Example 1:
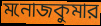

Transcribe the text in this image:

মনোজকুমার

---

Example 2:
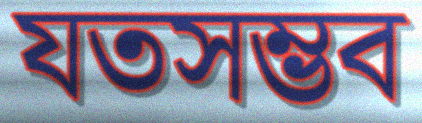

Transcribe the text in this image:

যতসম্ভব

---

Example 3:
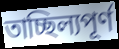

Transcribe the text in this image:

তাচ্ছিল্যপূর্ণ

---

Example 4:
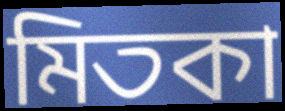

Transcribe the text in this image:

মিতকা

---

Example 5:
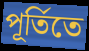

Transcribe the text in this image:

পূর্তিতে